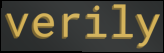
verily